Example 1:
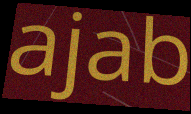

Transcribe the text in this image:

ajab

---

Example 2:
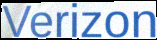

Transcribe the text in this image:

Verizon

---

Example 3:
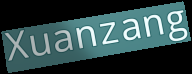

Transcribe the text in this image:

Xuanzang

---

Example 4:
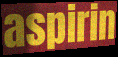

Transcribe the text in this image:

aspirin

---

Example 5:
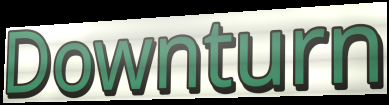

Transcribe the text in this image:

Downturn